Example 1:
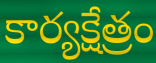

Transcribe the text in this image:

కార్యక్షేత్రం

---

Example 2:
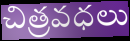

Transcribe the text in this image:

చిత్రవధలు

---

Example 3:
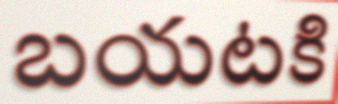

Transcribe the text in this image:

బయటకి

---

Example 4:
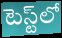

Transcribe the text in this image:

టెస్ట్‌లో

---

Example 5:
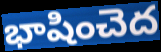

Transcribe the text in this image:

భాషించెద